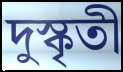
দুস্কৃতী